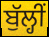
ਬੁੱਲ੍ਹੀਂ